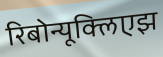
रिबोन्यूक्लिएझ